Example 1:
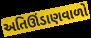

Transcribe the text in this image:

અતિઊંડાણવાળો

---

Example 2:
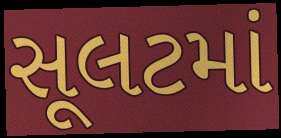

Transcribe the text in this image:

સૂલટમાં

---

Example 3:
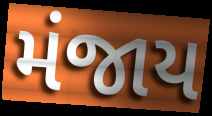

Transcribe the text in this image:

મંજાય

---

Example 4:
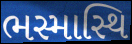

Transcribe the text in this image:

ભસ્માસ્થિ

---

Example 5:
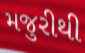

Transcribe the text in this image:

મજુરીથી